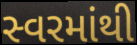
સ્વરમાંથી